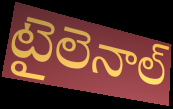
టైలెనాల్